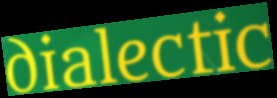
dialectic